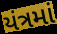
યંત્રમાં